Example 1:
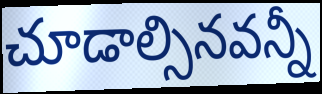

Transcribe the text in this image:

చూడాల్సినవన్నీ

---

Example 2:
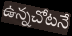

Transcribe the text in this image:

ఉన్నచోటనే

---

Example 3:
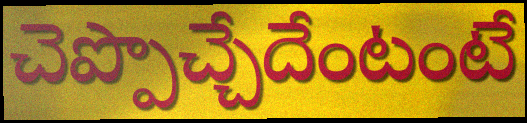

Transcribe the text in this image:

చెప్పొచ్చేదేంటంటే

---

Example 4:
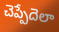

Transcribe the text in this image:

చెప్పేదెలా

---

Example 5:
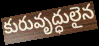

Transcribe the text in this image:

కురువృద్ధులైన